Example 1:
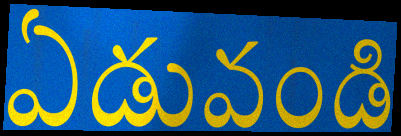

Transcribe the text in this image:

ఏడువండి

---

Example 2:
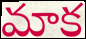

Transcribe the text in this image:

మాక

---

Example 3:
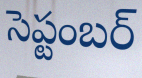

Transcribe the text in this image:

సెప్టంబర్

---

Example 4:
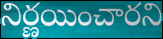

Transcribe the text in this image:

నిర్ణయించారని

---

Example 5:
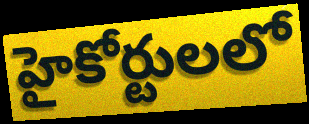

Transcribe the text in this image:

హైకోర్టులలో